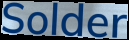
Solder